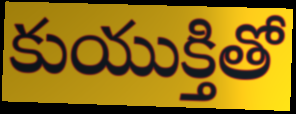
కుయుక్తితో